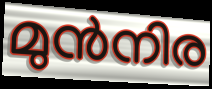
മുൻനിര